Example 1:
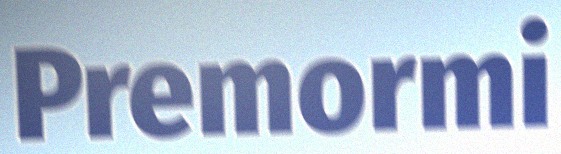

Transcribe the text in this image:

Premormi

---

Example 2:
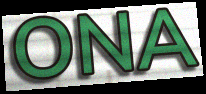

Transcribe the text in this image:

ONA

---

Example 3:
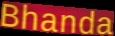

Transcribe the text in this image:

Bhanda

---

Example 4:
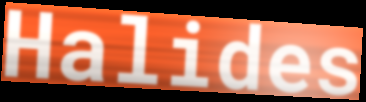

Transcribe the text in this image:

Halides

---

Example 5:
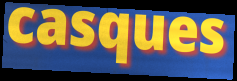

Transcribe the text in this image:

casques